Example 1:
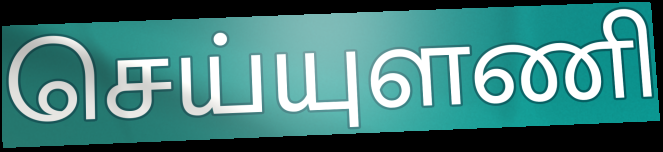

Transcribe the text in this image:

செய்யுளணி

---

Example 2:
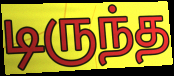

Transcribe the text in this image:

டிருந்த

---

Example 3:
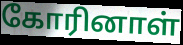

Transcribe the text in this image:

கோரினாள்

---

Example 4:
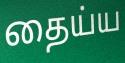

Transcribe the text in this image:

தைய்ய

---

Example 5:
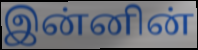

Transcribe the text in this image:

இன்னின்